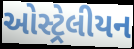
ઓસ્ટ્રેલીયન